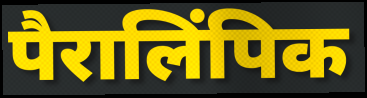
पैरालिंपिक